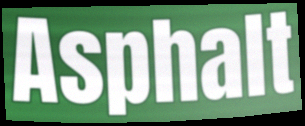
Asphalt